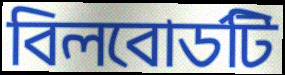
বিলবোর্ডটি